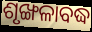
ଶୃଙ୍ଖଳାବଦ୍ଧ